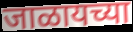
जाळायच्या